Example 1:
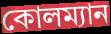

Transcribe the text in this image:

কোলম্যান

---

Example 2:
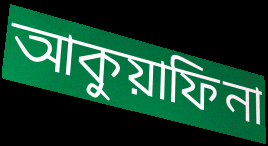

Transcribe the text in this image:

আকুয়াফিনা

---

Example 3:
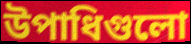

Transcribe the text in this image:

উপাধিগুলো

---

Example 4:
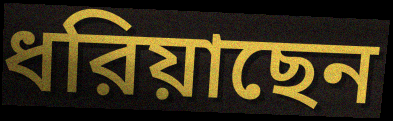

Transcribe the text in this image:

ধরিয়াছেন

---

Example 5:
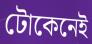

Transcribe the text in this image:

টোকেনেই